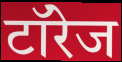
टॉरेज